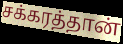
சக்கரத்தான்